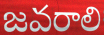
జవరాలి